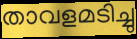
താവളമടിച്ചു